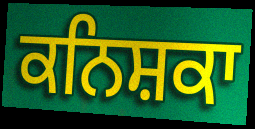
ਕਨਿਸ਼ਕਾ